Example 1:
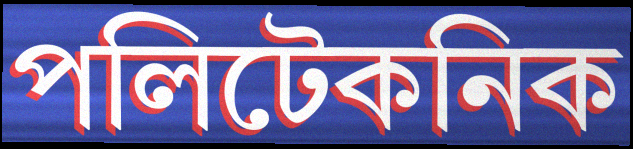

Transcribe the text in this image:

পলিটেকনিক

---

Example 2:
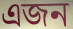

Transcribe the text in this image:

এজন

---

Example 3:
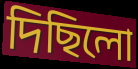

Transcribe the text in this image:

দিছিলো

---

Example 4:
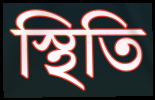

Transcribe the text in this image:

স্থিতি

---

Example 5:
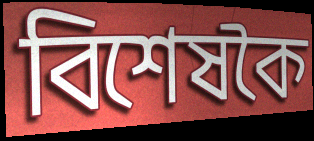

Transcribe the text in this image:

বিশেষকৈ